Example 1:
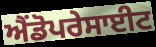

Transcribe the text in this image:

ਐਂਡੋਪਰੇਸਾਈਟ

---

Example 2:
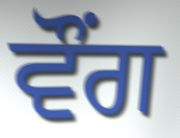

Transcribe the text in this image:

ਵੌਂਗ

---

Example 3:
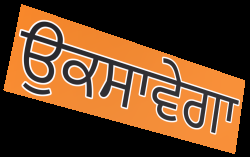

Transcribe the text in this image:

ਉਕਸਾਵੇਗਾ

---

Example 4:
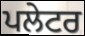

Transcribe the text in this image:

ਪਲੇਟਰ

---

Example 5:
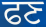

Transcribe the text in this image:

ਫਣ